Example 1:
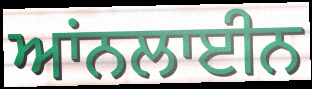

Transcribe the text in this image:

ਆਂਨਲਾਈਨ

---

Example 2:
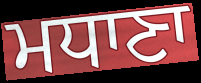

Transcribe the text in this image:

ਮਧਾਣਾ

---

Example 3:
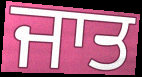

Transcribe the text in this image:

ਜਾਤ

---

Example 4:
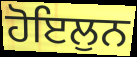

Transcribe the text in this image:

ਹੋਇਲੁਨ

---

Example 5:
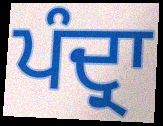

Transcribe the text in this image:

ਪੰਦ੍ਰਾ